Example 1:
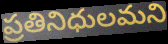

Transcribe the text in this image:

ప్రతినిధులమని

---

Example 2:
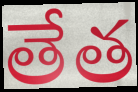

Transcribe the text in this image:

తేత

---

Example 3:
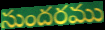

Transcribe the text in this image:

సుందరము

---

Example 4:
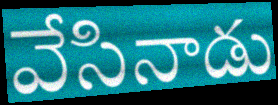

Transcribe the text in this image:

వేసినాడు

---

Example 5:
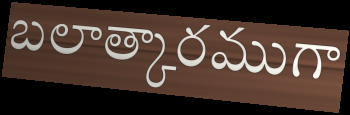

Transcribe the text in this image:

బలాత్కారముగా